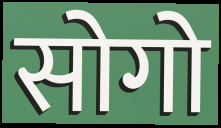
सोगो